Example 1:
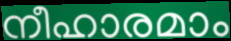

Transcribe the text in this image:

നീഹാരമാം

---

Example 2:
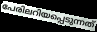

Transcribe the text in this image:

പേരിലറിയപ്പെടുന്നത്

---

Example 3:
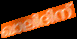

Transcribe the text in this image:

ഖാലിദിന്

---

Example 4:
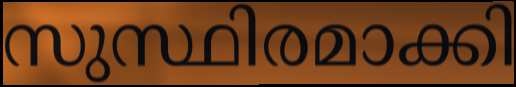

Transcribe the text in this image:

സുസ്ഥിരമാക്കി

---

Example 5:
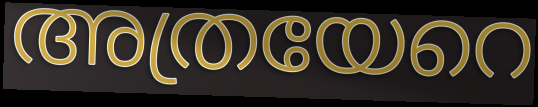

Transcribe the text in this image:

അത്രയേറെ